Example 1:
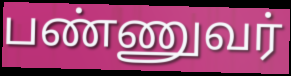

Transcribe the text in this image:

பண்ணுவர்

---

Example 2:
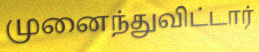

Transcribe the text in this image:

முனைந்துவிட்டார்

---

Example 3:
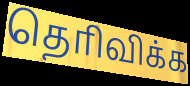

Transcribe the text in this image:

தெரிவிக்க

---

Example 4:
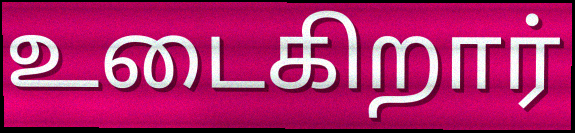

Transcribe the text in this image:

உடைகிறார்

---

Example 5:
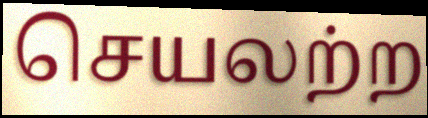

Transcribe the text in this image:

செயலற்ற